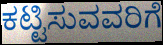
ಕಟ್ಟಿಸುವವರಿಗೆ